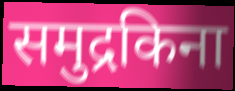
समुद्रकिना